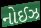
નોઈઝ